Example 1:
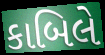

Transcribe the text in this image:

કાબિલે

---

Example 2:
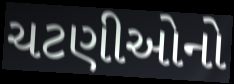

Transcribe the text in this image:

ચટણીઓનો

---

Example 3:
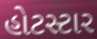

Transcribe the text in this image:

હોટસ્ટાર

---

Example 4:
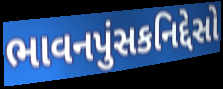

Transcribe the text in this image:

ભાવનપુંસકનિદ્દેસો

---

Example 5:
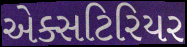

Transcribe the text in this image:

એક્સટિરિયર